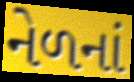
નેળનાં